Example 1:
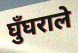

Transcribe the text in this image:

घुँघराले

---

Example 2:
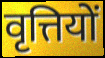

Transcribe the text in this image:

वृत्तियों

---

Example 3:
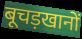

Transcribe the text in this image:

बूचड़खानों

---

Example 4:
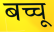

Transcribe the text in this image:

बच्चू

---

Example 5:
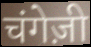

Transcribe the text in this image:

चंगेज़ी